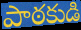
పాఠకుడి